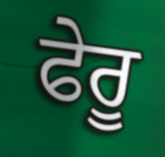
ਫੇਰੂ